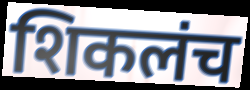
शिकलंच